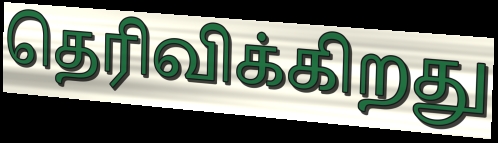
தெரிவிக்கிறது